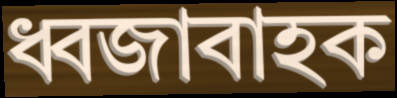
ধ্বজাবাহক